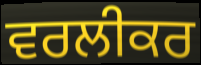
ਵਰਲੀਕਰ